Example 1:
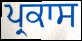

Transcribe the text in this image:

ਪ੍ਰਕਾਸ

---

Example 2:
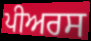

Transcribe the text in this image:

ਪੀਅਰਸ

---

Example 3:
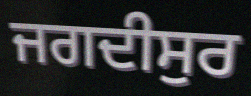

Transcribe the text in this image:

ਜਗਦੀਸੁਰ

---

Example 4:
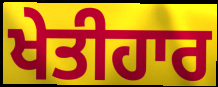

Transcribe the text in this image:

ਖੇਤੀਹਾਰ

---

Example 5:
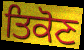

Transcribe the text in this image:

ਤਿਕੋਣ